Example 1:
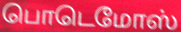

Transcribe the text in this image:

பொடெமோஸ்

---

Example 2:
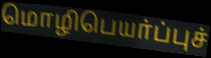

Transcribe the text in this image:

மொழிபெயர்ப்புச்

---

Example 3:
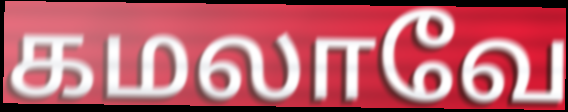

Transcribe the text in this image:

கமலாவே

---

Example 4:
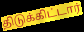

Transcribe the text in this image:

திடுக்கிட்டார்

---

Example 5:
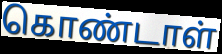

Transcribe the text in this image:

கொண்டாள்